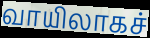
வாயிலாகச்